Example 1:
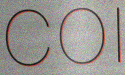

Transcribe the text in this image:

COI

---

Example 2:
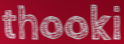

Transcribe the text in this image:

thooki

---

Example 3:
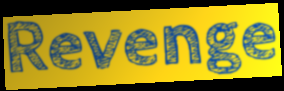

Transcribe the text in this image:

Revenge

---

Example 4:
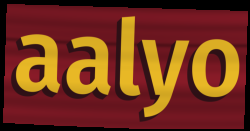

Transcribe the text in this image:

aalyo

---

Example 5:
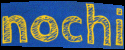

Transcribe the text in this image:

nochi